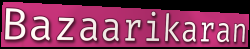
Bazaarikaran